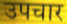
उपचार